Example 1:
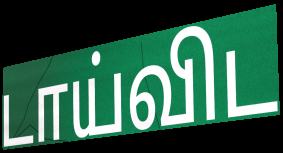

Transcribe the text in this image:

டாய்விட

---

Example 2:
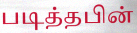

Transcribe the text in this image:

படித்தபின்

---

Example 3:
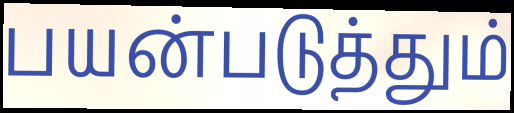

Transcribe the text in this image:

பயன்படுத்தும்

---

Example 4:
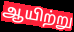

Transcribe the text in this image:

ஆயிற்று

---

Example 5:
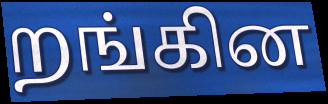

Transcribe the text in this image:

றங்கின